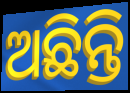
ଅଛିନ୍ତି